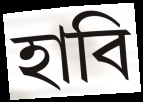
হাবি